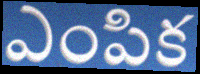
ఎంపిక